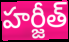
హర్జీత్